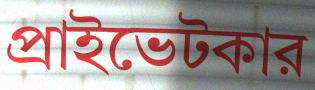
প্রাইভেটকার